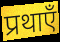
प्रथाएँ